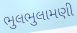
ભુલભુલામણી